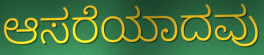
ಆಸರೆಯಾದವು